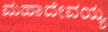
ಮಹಾದೇವಯ್ಯ